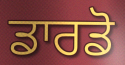
ਡਾਰਡੋ